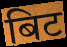
बिट